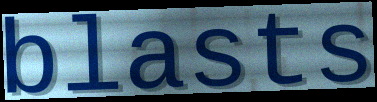
blasts